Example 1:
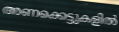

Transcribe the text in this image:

അണക്കെട്ടുകളിൽ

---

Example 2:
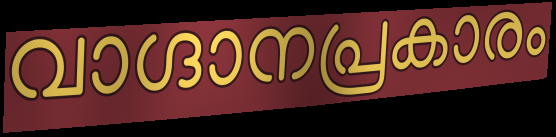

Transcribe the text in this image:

വാഗ്ദാനപ്രകാരം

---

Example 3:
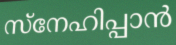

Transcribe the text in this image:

സ്നേഹിപ്പാൻ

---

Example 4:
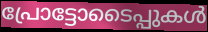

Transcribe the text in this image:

പ്രോട്ടോടൈപ്പുകൾ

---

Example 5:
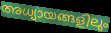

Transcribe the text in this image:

അധ്യായങ്ങളിലും